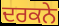
ਦਰਕਨੇ